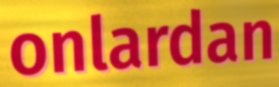
onlardan